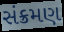
સંક્રમણ